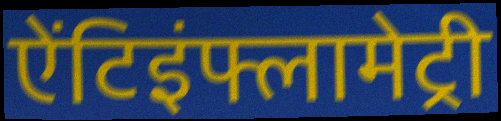
ऐंटिइंफ्लामेट्री